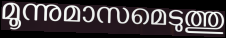
മൂന്നുമാസമെടുത്തു